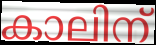
കാലിന്